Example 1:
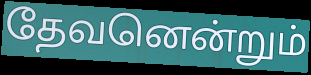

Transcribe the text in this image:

தேவனென்றும்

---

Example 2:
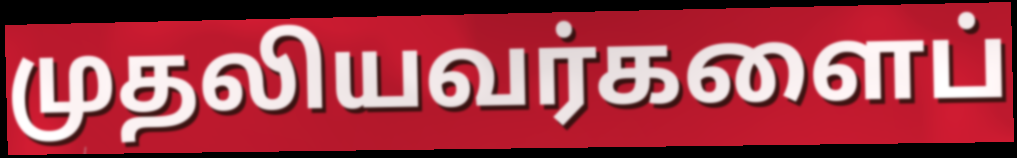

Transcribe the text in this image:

முதலியவர்களைப்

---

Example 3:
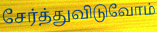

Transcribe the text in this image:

சேர்த்துவிடுவோம்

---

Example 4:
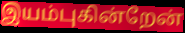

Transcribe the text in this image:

இயம்புகின்றேன்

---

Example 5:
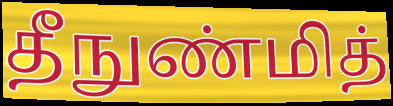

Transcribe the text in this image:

தீநுண்மித்